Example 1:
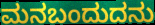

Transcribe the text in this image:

ಮನಬಂದುದನು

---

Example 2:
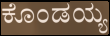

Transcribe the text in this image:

ಕೊಂಡಯ್ಯ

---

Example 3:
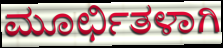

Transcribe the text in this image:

ಮೂರ್ಛಿತಳಾಗಿ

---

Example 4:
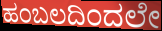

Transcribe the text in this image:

ಹಂಬಲದಿಂದಲೇ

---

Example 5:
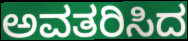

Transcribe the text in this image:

ಅವತರಿಸಿದ